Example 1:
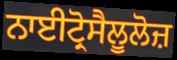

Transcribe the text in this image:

ਨਾਈਟ੍ਰੋਸੈਲੂਲੋਜ਼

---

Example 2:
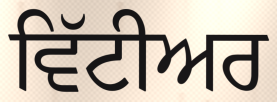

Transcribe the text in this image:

ਵਿੱਟੀਅਰ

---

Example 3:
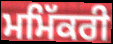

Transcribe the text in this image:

ਮਮਿੱਕਰੀ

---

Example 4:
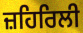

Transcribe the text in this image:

ਜ਼ਹਿਰਿਲੀ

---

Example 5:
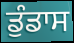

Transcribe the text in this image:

ਡੁੰਡਾਸ